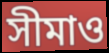
সীমাও